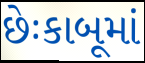
છેઃકાબૂમાં